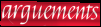
arguements